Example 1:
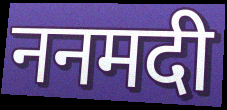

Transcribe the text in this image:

ननमदी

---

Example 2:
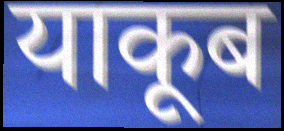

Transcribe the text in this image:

याकूब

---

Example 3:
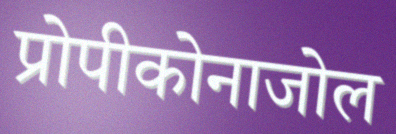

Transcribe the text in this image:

प्रोपीकोनाजोल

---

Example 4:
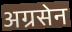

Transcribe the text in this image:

अग्रसेन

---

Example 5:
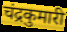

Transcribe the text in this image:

चंद्रकुमारी